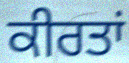
ਕੀਰਤਾਂ